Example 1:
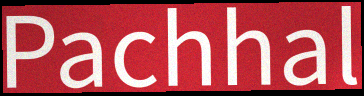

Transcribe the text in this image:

Pachhal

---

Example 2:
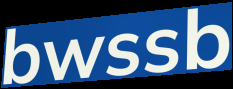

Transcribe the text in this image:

bwssb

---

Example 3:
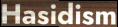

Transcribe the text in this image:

Hasidism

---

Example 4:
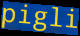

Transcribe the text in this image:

pigli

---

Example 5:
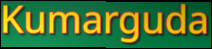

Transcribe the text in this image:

Kumarguda